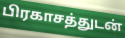
பிரகாசத்துடன்